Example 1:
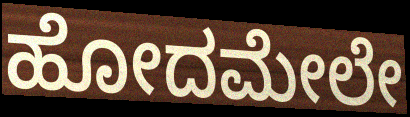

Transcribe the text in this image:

ಹೋದಮೇಲೇ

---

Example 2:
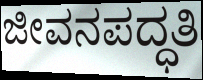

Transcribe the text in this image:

ಜೀವನಪದ್ಧತಿ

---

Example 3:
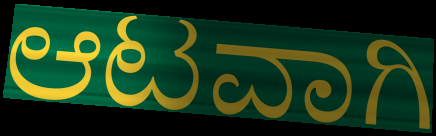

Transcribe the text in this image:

ಆಟವಾಗಿ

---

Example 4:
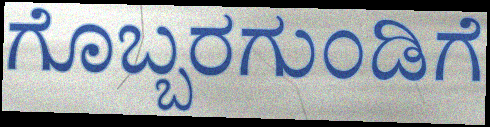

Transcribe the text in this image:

ಗೊಬ್ಬರಗುಂಡಿಗೆ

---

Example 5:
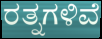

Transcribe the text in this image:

ರತ್ನಗಳಿವೆ